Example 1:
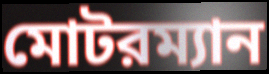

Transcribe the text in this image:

মোটরম্যান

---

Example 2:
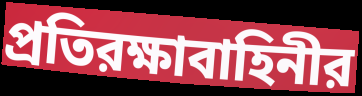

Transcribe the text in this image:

প্রতিরক্ষাবাহিনীর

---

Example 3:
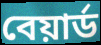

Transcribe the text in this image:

বেয়ার্ড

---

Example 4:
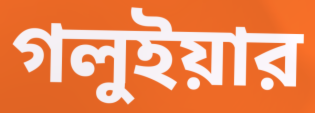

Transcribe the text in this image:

গলুইয়ার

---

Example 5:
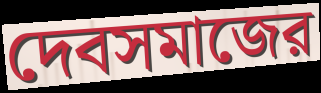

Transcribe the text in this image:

দেবসমাজের